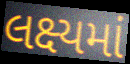
લક્ષ્યમાં